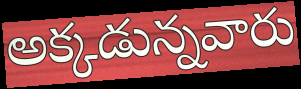
అక్కడున్నవారు